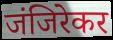
जंजिरेकर